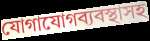
যোগাযোগব্যবস্থাসহ